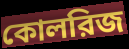
কোলরিজ